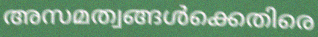
അസമത്വങ്ങൾക്കെതിരെ